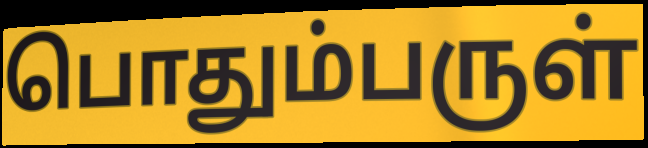
பொதும்பருள்